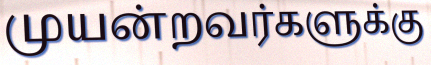
முயன்றவர்களுக்கு